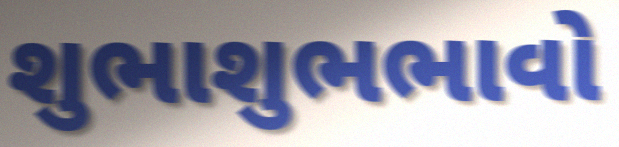
શુભાશુભભાવો